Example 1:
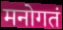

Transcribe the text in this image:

मनोगतं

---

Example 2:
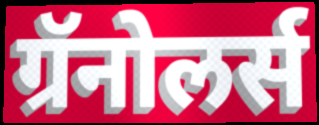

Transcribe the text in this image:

ग्रॅनोलर्स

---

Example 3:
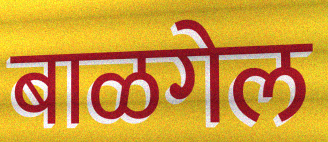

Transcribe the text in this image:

बाळगेल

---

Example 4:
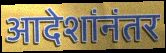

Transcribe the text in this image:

आदेशांनंतर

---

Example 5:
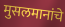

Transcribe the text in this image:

मुसलमानांचे